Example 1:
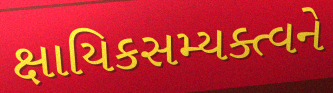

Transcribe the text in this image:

ક્ષાયિકસમ્યક્ત્વને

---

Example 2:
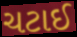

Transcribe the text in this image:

ચટાઈ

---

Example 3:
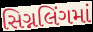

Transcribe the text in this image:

સિગ્નલિંગમાં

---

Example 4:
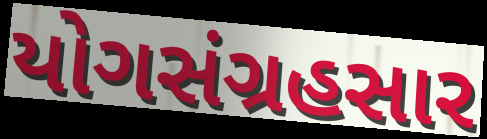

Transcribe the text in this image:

યોગસંગ્રહસાર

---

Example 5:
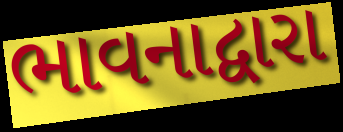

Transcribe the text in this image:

ભાવનાદ્વારા